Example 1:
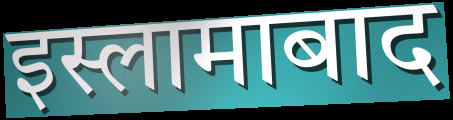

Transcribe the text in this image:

इस्लामाबाद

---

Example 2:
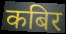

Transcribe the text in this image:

कबिर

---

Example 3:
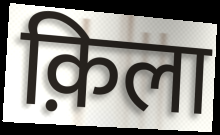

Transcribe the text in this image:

क़िला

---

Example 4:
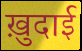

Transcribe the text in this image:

ख़ुदाई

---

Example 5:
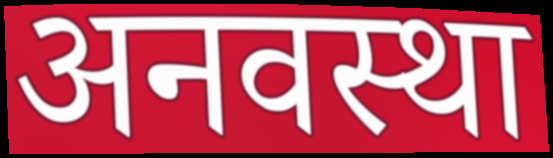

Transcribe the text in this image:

अनवस्था